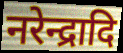
नरेन्द्रादि